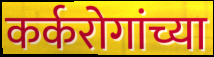
कर्करोगांच्या